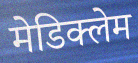
मेडिक्लेम